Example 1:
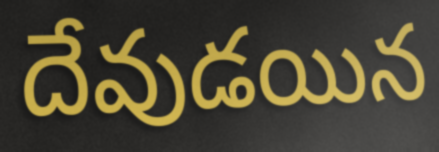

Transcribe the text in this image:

దేవుడయిన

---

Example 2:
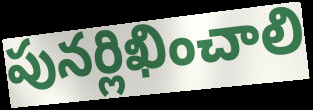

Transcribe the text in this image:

పునర్లిఖించాలి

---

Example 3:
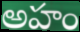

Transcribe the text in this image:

అహం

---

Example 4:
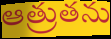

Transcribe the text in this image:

ఆత్రుతను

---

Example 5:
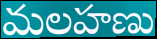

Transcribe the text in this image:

మలహణు